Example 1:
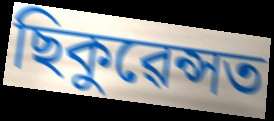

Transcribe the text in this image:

ছিকুৱেন্সত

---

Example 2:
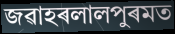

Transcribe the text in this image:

জৱাহৰলালপুৰমত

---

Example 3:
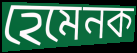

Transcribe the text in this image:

হেমেনক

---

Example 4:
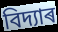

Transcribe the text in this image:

বিদ্যাৰ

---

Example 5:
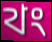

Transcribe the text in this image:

থং